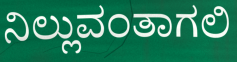
ನಿಲ್ಲುವಂತಾಗಲಿ